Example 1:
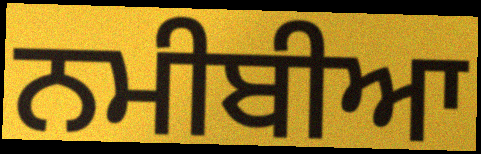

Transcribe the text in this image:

ਨਮੀਬੀਆ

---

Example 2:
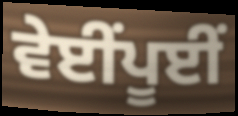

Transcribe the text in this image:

ਵੇਈਂਪੂਈਂ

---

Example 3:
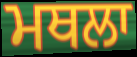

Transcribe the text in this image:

ਮਥਲਾ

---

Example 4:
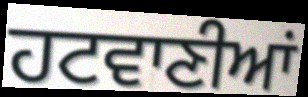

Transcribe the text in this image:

ਹਟਵਾਣੀਆਂ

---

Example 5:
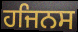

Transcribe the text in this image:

ਹਜਿਨਸ